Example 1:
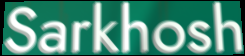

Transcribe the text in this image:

Sarkhosh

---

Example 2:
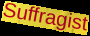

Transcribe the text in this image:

Suffragist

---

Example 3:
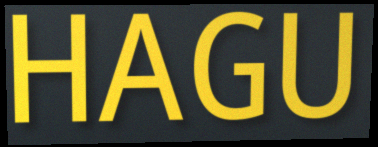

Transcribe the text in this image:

HAGU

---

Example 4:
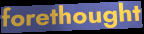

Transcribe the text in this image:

forethought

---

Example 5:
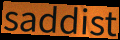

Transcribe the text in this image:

saddist